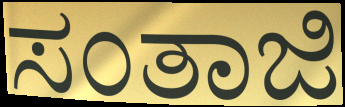
ಸಂತಾಜಿ